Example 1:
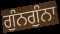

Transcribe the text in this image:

ਗੁੰਨਗੁੰਨਾ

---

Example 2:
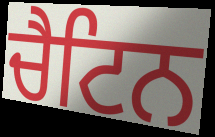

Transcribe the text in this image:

ਚੈਟਿਨ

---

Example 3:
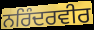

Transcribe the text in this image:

ਨਰਿੰਦਰਵੀਰ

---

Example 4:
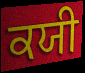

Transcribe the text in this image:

ਕਯੀ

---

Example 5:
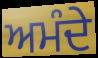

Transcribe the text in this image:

ਅਮੰਦੇ